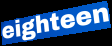
eighteen